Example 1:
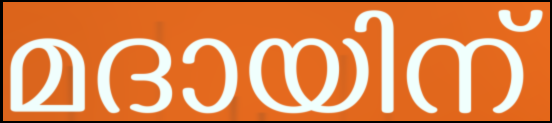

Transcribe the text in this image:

മദായിന്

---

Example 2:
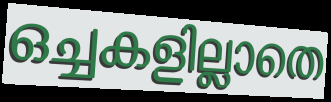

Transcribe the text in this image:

ഒച്ചകളില്ലാതെ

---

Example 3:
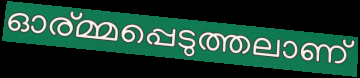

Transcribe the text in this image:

ഓര്മ്മപ്പെടുത്തലാണ്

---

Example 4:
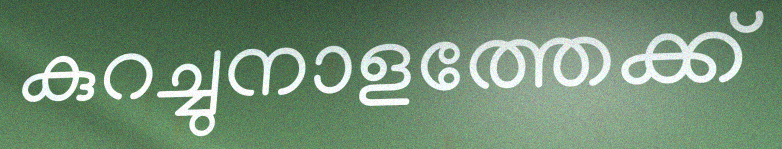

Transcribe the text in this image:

കുറച്ചുനാളത്തേക്ക്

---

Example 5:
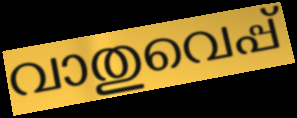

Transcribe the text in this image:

വാതുവെപ്പ്